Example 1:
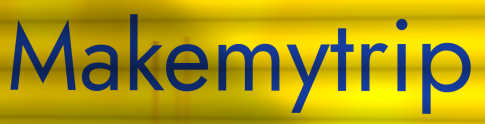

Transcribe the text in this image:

Makemytrip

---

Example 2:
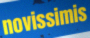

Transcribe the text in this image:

novissimis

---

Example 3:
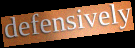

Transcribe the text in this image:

defensively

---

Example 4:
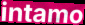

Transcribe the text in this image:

intamo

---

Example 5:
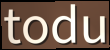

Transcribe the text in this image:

todu